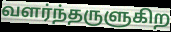
வளர்ந்தருளுகிற